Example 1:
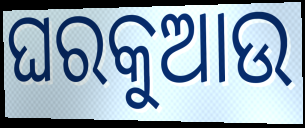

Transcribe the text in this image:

ଘରକୁଆଉ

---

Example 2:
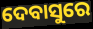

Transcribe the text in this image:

ଦେବାସୁରେ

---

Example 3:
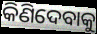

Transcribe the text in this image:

କିଣିଦେବାକୁ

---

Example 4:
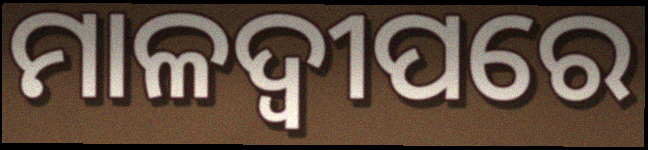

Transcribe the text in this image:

ମାଳଦ୍ବୀପରେ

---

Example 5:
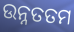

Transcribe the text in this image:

ଉନ୍ନତତମ